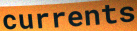
currents